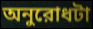
অনুরোধটা